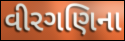
વીરગણિના